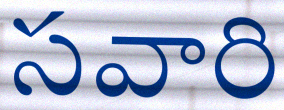
సవారి